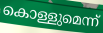
കൊള്ളുമെന്ന്